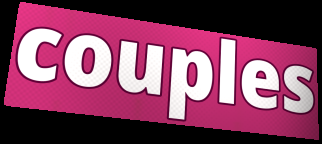
couples